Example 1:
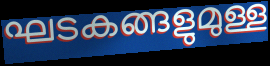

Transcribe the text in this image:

ഘടകങ്ങളുമുള്ള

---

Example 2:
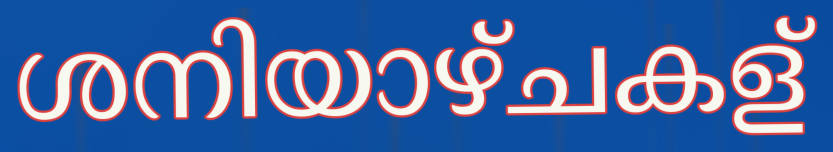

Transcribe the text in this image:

ശനിയാഴ്ചകള്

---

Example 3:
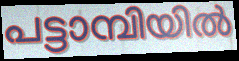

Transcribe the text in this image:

പട്ടാമ്പിയിൽ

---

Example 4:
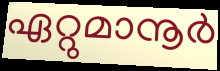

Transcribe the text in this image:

ഏറ്റുമാനൂർ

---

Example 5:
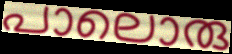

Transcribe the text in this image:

പാലൊരു